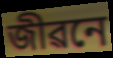
জীৱনে